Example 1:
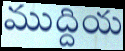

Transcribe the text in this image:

ముద్దియ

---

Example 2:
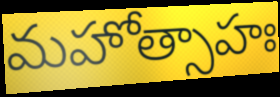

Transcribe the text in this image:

మహోత్సాహః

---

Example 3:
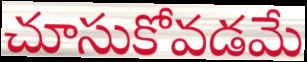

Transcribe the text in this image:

చూసుకోవడమే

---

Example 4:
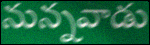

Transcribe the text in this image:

నున్నవాడు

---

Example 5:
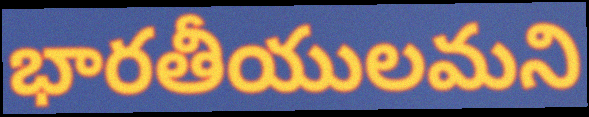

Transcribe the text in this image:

భారతీయులమని